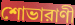
শোভারাণী